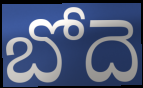
బోదె